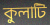
কুলাটি